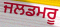
ਜਲਡਮਰੂ